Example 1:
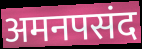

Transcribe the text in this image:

अमनपसंद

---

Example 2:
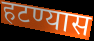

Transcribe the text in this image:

हटण्यास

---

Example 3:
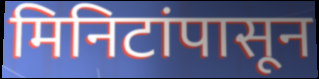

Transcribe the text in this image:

मिनिटांपासून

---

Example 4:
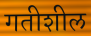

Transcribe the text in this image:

गतीशील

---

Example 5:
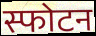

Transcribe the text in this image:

स्फोटन